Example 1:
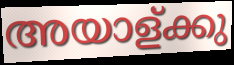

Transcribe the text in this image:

അയാള്ക്കു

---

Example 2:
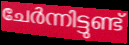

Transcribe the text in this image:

ചേർന്നിട്ടുണ്ട്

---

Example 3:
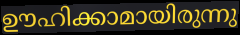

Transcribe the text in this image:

ഊഹിക്കാമായിരുന്നു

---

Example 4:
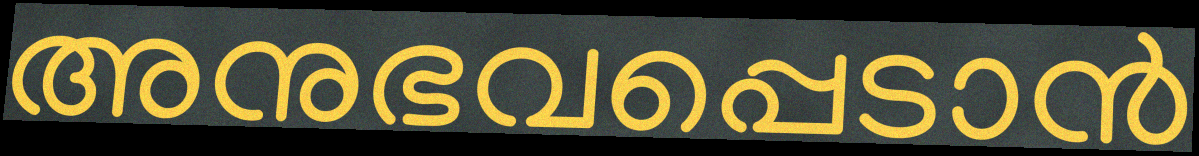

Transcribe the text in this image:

അനുഭവപ്പെടാൻ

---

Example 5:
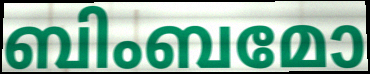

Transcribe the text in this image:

ബിംബമോ